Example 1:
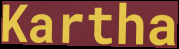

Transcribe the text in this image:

Kartha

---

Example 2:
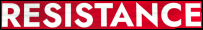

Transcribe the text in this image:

RESISTANCE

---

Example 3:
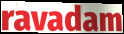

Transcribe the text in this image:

ravadam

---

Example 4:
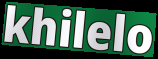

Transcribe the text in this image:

khilelo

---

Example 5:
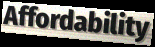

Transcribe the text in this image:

Affordability